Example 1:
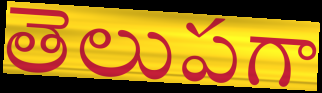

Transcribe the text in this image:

తెలుపగా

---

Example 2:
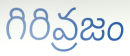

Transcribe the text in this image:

గిరివ్రజం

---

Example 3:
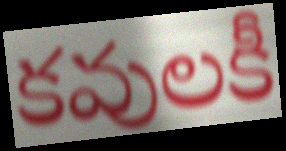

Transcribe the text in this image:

కవులకీ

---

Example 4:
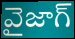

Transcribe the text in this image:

వైజాగ్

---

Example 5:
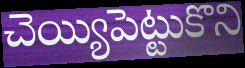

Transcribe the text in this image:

చెయ్యిపెట్టుకొని